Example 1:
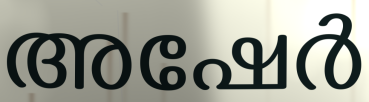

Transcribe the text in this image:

അഷേർ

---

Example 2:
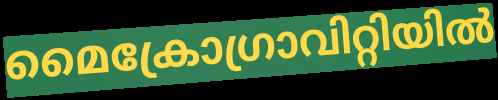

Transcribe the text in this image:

മൈക്രോഗ്രാവിറ്റിയിൽ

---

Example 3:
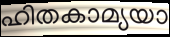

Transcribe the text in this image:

ഹിതകാമ്യയാ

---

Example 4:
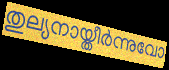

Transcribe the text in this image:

തുല്യനായ്തീർന്നുവോ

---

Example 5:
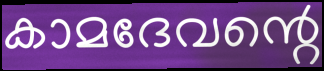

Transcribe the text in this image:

കാമദേവന്റെ